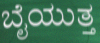
ಬೈಯುತ್ತ